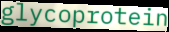
glycoprotein